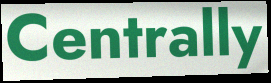
Centrally